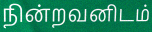
நின்றவனிடம்